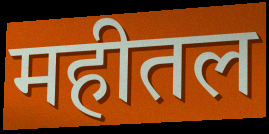
महीतल